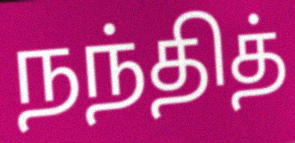
நந்தித்